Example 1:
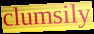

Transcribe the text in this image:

clumsily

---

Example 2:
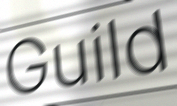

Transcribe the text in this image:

Guild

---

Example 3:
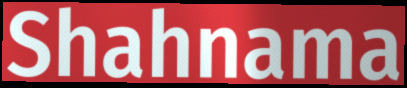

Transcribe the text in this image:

Shahnama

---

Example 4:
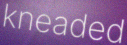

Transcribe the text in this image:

kneaded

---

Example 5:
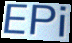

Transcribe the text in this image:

EPi